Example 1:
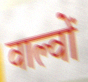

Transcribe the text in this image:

वाल्वों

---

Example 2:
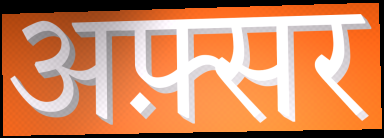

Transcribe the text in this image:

अफ़्सर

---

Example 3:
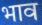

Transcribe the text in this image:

भाव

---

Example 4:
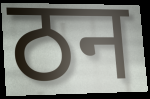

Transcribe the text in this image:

ठन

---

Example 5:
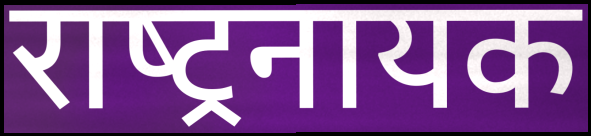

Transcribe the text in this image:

राष्ट्रनायक